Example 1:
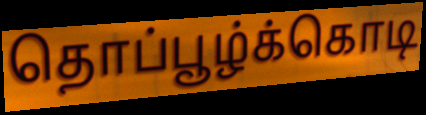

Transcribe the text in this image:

தொப்பூழ்க்கொடி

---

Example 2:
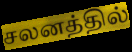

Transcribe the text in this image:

சலனத்தில்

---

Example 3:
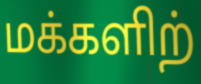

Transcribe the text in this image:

மக்களிற்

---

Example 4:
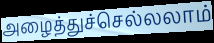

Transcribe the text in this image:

அழைத்துச்செல்லலாம்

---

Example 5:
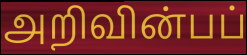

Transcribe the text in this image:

அறிவின்பப்